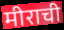
मीराची